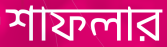
শাফলার